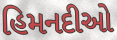
હિમનદીઓ